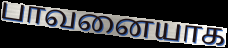
பாவனையாக